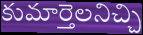
కుమార్తెలనిచ్చి